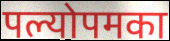
पल्योपमका